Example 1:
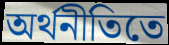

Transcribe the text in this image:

অর্থনীতিতে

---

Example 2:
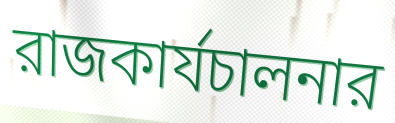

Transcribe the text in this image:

রাজকার্যচালনার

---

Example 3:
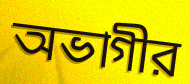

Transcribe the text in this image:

অভাগীর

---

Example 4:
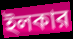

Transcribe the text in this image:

ইলকার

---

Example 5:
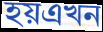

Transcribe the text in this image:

হয়এখন